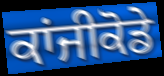
ਕਾਂਜੀਕੋਡੇ